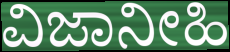
ವಿಜಾನೀಹಿ